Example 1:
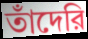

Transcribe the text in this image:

তাঁদেরি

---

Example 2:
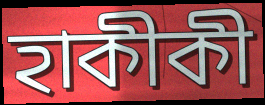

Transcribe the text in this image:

হাকীকী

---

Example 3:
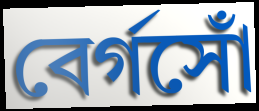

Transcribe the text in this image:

বের্গসোঁ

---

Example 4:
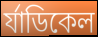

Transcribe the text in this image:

র্যাডিকেল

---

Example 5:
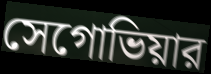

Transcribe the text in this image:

সেগোভিয়ার